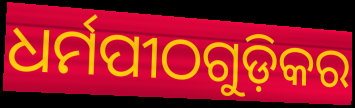
ଧର୍ମପୀଠଗୁଡ଼ିକର